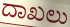
ದಾಖಲು